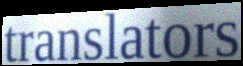
translators